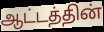
ஆட்டத்தின்